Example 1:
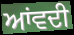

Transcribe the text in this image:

ਆਂਵਦੀ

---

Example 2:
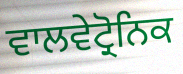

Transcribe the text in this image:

ਵਾਲਵੇਟ੍ਰੋਨਿਕ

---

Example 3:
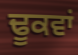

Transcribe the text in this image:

ਢੂਕਵਾਂ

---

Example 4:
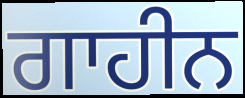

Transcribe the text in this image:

ਗਾਹੀਨ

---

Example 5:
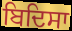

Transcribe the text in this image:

ਬਿਦਿਸਾ